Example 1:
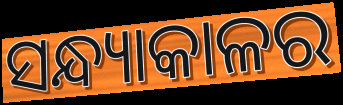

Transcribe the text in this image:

ସନ୍ଧ୍ୟାକାଳର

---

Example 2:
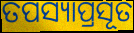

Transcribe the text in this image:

ତପସ୍ୟାପ୍ରସୂତ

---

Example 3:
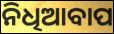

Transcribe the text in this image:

ନିଧିଆବାପ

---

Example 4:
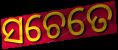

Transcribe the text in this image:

ସଚେତେ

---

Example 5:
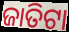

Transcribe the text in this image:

ଜାତିଟା